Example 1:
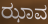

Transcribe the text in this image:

ಝಾವ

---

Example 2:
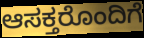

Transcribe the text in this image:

ಆಸಕ್ತರೊಂದಿಗೆ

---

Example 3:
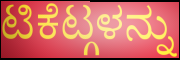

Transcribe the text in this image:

ಟಿಕೆಟ್ಗಳನ್ನು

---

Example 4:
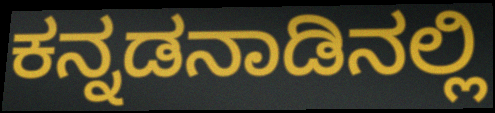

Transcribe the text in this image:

ಕನ್ನಡನಾಡಿನಲ್ಲಿ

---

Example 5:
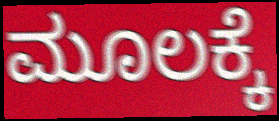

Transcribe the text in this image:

ಮೂಲಕ್ಕೆ